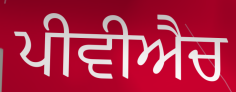
ਪੀਵੀਐਚ